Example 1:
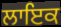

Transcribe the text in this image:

ਲਾਇਕ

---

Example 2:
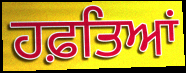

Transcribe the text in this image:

ਹਫ਼ਤਿਆਂ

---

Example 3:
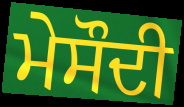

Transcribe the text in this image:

ਮੇਸੌਦੀ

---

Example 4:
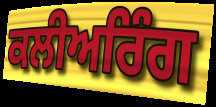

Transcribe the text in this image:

ਕਲੀਅਰਿੰਗ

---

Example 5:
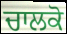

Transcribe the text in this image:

ਚਾਲਕੋ